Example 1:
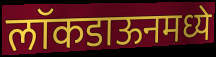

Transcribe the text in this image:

लॉकडाऊनमध्ये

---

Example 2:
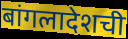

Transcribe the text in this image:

बांगलादेशची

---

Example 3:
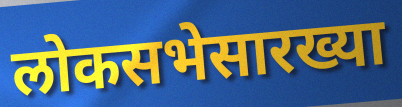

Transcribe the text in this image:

लोकसभेसारख्या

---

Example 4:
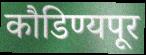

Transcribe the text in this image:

कौडिण्यपूर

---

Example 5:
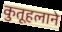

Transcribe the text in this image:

कुतूहलाने